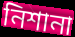
নিশানা